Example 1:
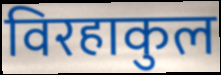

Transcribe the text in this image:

विरहाकुल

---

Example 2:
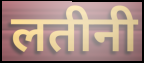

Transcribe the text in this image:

लतीनी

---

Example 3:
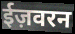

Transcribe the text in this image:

ईज़वरन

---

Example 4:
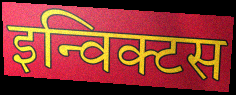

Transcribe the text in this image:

इन्विक्टस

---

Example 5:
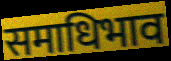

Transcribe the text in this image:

समाधिभाव